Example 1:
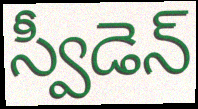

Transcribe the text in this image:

స్వీడెన్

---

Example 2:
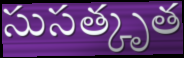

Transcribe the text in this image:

సుసత్కృత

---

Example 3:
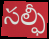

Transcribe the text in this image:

సల్ఫీ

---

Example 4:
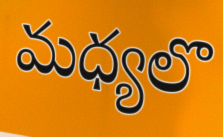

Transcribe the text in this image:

మధ్యలొ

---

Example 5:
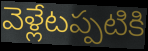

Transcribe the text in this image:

వెళ్లేటప్పటికి